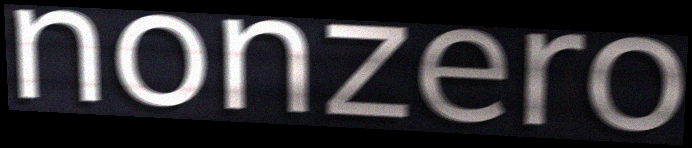
nonzero